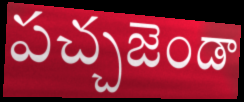
పచ్చజెండా